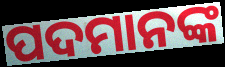
ପଦମାନଙ୍କ